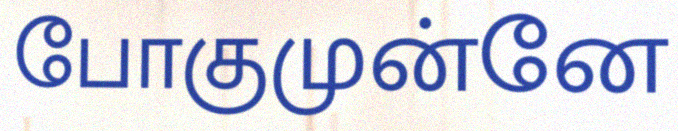
போகுமுன்னே